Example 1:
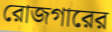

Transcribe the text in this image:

রোজগারের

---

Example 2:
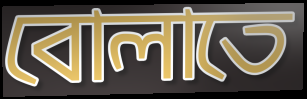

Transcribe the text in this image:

বোলাতে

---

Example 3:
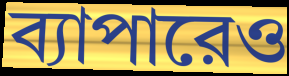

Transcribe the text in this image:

ব্যাপারেও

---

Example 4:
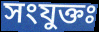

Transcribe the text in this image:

সংযুক্তঃ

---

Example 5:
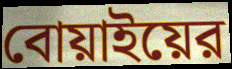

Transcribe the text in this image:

বোয়াইয়ের